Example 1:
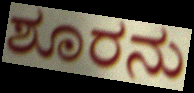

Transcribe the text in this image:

ಶೂರನು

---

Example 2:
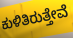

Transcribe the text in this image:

ಕುಳಿತಿರುತ್ತೇವೆ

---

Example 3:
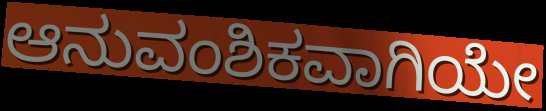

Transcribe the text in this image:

ಆನುವಂಶಿಕವಾಗಿಯೇ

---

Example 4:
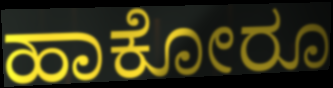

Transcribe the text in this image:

ಹಾಕೋರೂ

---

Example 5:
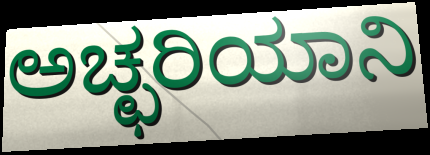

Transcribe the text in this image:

ಅಚ್ಛರಿಯಾನಿ